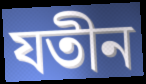
যতীন